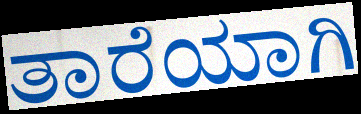
ತಾರೆಯಾಗಿ